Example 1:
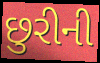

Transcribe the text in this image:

છુરીની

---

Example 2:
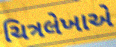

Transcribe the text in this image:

ચિત્રલેખાએ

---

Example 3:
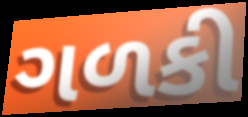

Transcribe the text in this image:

ગળકી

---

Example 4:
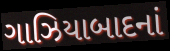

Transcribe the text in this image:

ગાઝિયાબાદનાં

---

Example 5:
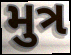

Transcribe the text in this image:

મુત્ર